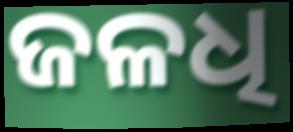
ଜଳଧି